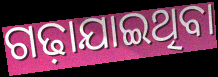
ଗଢ଼ାଯାଇଥିବା